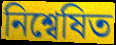
নিশ্বেষিত